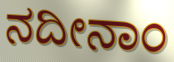
ನದೀನಾಂ